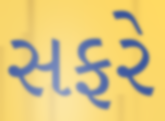
સફરે